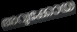
അവുക്കോയ